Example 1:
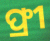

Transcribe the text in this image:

ଫ୍ରୀ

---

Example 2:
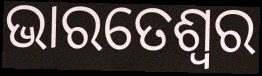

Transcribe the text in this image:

ଭାରତେଶ୍ୱର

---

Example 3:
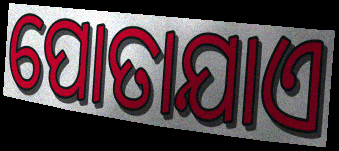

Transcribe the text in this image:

ପୋତାଯାଏ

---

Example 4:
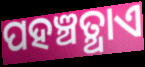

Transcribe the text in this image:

ପହଞ୍ଚତ୍ଥାଏ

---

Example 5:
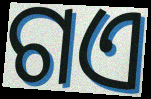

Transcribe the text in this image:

ଗଏ